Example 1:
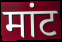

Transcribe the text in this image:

मांट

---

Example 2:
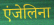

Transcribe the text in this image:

एंजेलिना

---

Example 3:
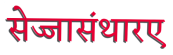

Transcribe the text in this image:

सेज्जासंथारए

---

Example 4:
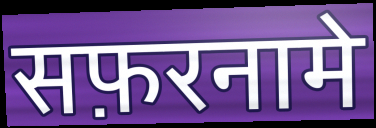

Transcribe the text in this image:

सफ़रनामे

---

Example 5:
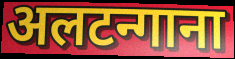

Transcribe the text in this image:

अलटन्गाना